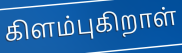
கிளம்புகிறாள்